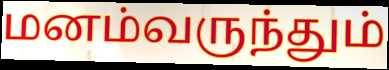
மனம்வருந்தும்